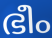
ഭീം